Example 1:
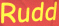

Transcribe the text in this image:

Rudd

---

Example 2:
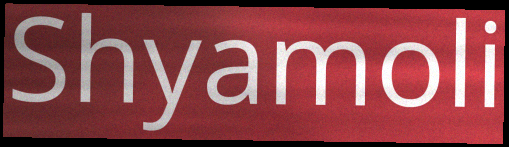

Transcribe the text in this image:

Shyamoli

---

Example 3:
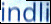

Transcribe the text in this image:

indli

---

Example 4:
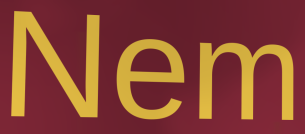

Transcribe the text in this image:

Nem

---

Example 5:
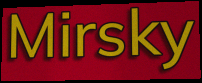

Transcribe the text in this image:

Mirsky